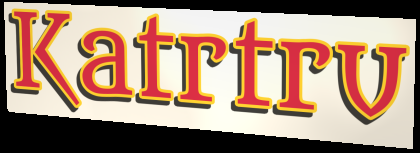
Katrtru